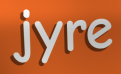
jyre